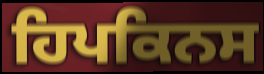
ਹਿਪਕਿਨਸ